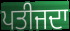
ਪਤੀਜਦਾ